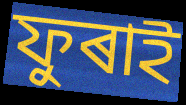
ফুৰাই